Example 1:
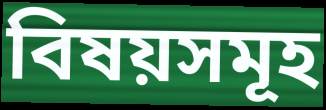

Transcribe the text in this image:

বিষয়সমূহ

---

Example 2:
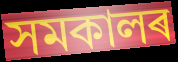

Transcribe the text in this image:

সমকালৰ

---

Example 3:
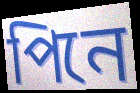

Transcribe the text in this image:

পিনে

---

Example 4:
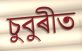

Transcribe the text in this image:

চুবুৰীত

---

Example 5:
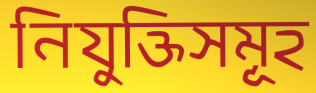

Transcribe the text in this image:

নিযুক্তিসমূহ